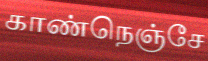
காண்நெஞ்சே